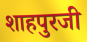
शाहपुरजी